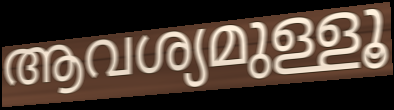
ആവശ്യമുള്ളൂ